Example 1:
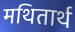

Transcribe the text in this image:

मथितार्थ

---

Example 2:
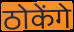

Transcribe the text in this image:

ठोकेंगे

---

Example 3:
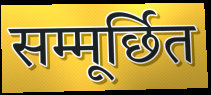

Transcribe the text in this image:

सम्मूर्छित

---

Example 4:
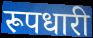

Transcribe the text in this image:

रूपधारी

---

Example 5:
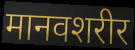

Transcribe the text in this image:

मानवशरीर